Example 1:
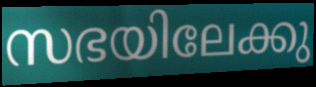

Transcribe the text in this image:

സഭയിലേക്കു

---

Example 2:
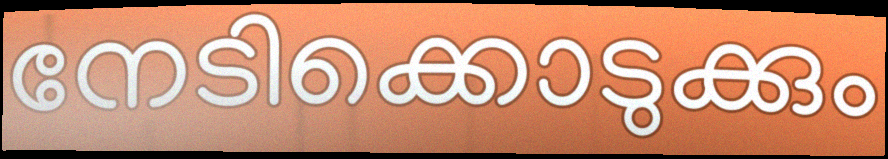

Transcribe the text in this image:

നേടിക്കൊടുക്കും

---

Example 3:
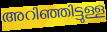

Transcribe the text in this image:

അറിഞ്ഞിട്ടുള്ള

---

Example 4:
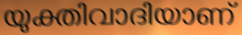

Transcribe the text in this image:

യുക്തിവാദിയാണ്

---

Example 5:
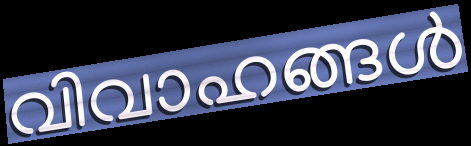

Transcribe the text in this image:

വിവാഹങ്ങൾ